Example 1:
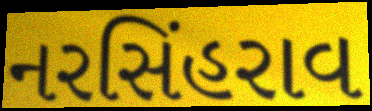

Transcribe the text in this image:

નરસિંહરાવ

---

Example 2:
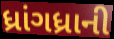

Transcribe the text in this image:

ધ્રાંગધ્રાની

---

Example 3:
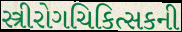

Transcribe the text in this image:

સ્ત્રીરોગચિકિત્સકની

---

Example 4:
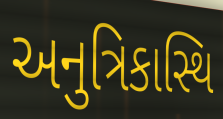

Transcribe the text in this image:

અનુત્રિકાસ્થિ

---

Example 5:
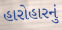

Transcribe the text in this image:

હારોહારનું